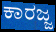
ಕಾರಜ್ಜ